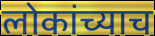
लोकांच्याच